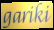
gariki